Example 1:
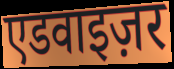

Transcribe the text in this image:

एडवाइज़र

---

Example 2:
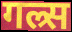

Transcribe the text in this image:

गल्र्स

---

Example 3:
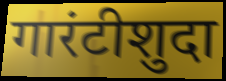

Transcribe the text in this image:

गारंटीशुदा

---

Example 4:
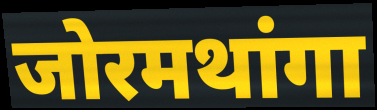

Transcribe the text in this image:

जोरमथांगा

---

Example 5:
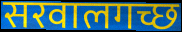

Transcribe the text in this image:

सरवालगच्छ